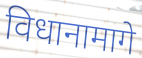
विधानामागे